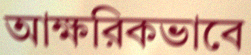
আক্ষরিকভাবে